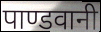
पाण्डवानी